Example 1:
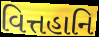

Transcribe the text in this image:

વિત્તહાનિ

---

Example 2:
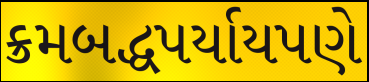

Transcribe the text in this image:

ક્રમબદ્ધપર્યાયપણે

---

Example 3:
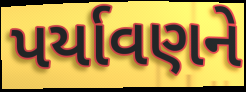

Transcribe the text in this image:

પર્યાવણને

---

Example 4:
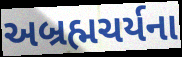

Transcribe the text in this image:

અબ્રહ્મચર્યના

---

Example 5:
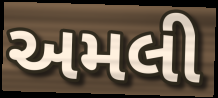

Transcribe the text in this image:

અમલી